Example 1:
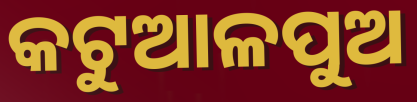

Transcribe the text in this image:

କଟୁଆଳପୁଅ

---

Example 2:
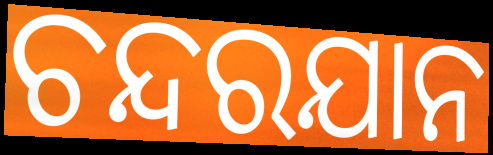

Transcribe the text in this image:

ଚନ୍ଦରଯାନ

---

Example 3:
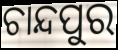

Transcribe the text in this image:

ଚାନ୍ଦପୁର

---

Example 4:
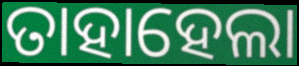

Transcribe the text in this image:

ତାହାହେଲା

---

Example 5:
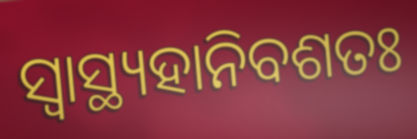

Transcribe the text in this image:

ସ୍ୱାସ୍ଥ୍ୟହାନିବଶତଃ